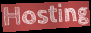
Hosting